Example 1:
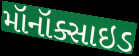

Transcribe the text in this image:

મૉનૉક્સાઇડ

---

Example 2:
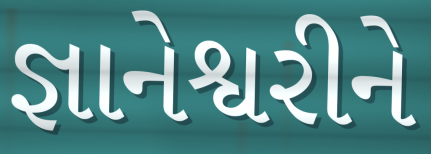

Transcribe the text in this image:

જ્ઞાનેશ્વરીને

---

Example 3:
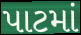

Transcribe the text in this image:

પાટમાં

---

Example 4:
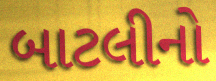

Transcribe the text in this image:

બાટલીનો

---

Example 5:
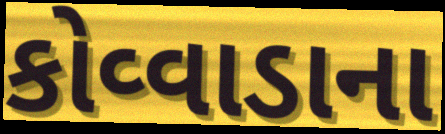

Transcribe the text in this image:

કોવ્વાડાના